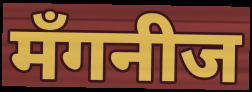
मँगनीज